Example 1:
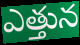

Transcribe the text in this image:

ఎత్తున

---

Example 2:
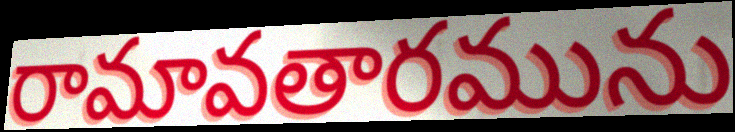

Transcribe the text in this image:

రామావతారమును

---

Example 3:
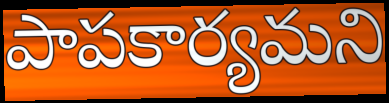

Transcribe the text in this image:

పాపకార్యమని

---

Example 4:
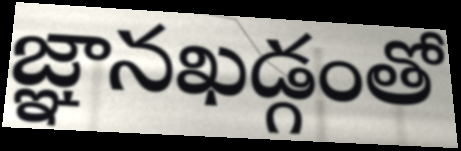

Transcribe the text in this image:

జ్ఞానఖడ్గంతో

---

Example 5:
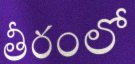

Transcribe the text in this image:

తీరంలో